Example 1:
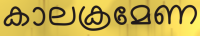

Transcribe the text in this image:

കാലക്രമേണ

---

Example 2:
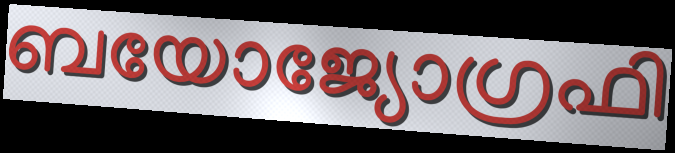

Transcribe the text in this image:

ബയോജ്യോഗ്രഫി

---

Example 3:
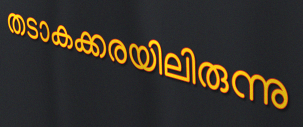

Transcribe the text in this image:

തടാകക്കരയിലിരുന്നു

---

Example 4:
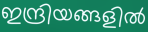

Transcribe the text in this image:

ഇന്ദ്രിയങ്ങളിൽ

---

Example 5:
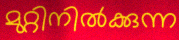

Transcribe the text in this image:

മുറ്റിനിൽക്കുന്ന